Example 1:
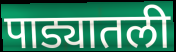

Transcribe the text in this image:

पाड्यातली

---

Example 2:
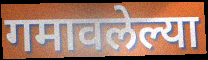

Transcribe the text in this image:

गमावलेल्या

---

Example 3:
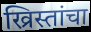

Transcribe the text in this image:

ख्रिस्तांचा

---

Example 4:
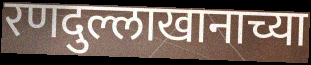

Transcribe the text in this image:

रणदुल्लाखानाच्या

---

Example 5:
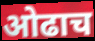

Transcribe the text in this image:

ओढाच